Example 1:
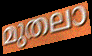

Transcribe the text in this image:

മുതലാ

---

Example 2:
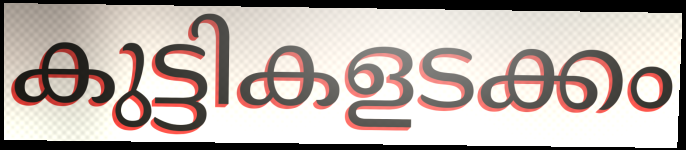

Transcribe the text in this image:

കുട്ടികളടക്കം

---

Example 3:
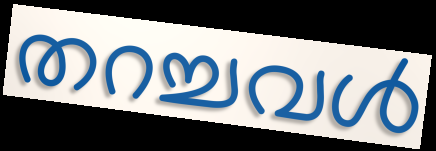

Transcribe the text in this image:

തറച്ചവൾ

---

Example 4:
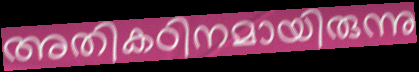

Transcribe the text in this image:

അതികഠിനമായിരുന്നു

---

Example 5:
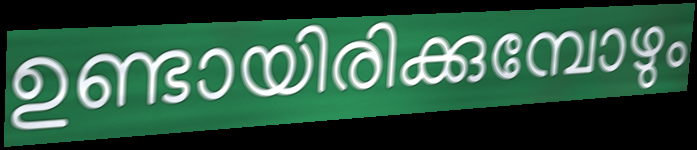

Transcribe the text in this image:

ഉണ്ടായിരിക്കുമ്പോഴും